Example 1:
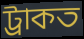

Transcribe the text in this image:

ট্ৰাকত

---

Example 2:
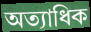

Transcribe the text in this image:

অত্যাধিক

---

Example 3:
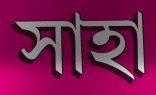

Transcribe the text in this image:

সাহা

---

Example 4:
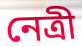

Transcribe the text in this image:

নেত্ৰী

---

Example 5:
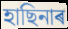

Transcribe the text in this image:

হাছিনাৰ